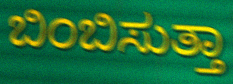
ಬಿಂಬಿಸುತ್ತಾ